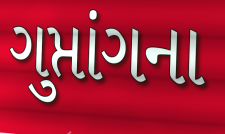
ગુપ્તાંગના